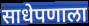
साधेपणाला